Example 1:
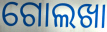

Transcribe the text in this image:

ଗୋଲଖା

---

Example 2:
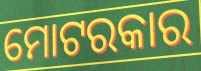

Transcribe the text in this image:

ମୋଟରକାର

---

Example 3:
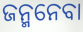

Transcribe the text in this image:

ଜନ୍ମନେବା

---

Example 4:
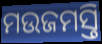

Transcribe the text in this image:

ମଉଜମସ୍ତି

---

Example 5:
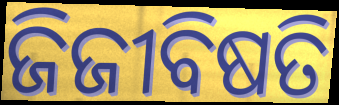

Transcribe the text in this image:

ଜିଜୀବିଷତି